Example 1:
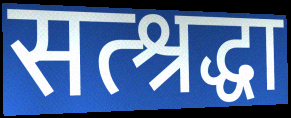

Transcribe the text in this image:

सत्श्रद्धा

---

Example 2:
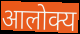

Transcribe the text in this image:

आलोक्य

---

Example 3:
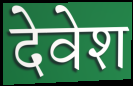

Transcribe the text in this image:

देवेश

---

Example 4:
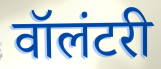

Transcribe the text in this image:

वॉलंटरी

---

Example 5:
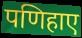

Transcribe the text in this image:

पणिहाए